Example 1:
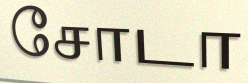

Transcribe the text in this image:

சோடா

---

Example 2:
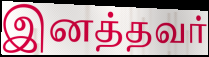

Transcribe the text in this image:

இனத்தவர்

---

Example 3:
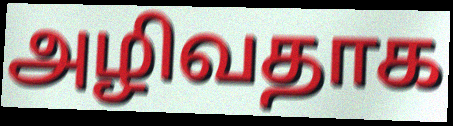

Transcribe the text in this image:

அழிவதாக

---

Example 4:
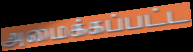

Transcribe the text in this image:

அமைக்கப்பட்ட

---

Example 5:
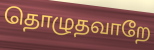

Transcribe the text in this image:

தொழுதவாறே